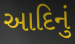
આદિનું